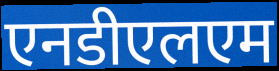
एनडीएलएम